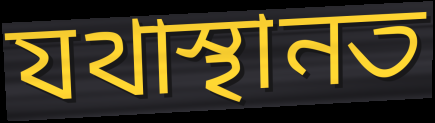
যথাস্থানত